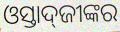
ଓସ୍ତାଦ୍‌ଜୀଙ୍କର